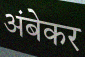
अंबेकर